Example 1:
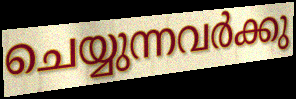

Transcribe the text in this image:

ചെയ്യുന്നവർക്കു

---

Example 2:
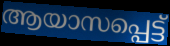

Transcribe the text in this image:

ആയാസപ്പെട്ട്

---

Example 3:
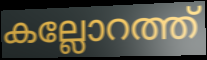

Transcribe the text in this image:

കല്ലോറത്ത്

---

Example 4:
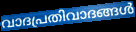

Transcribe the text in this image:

വാദപ്രതിവാദങ്ങൾ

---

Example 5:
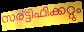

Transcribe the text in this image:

സര്ട്ടിഫിക്കറ്റും